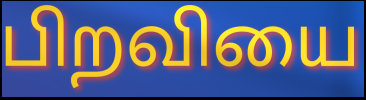
பிறவியை